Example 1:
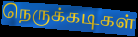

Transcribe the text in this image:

நெருக்கடிகள்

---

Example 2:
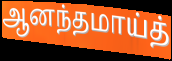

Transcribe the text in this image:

ஆனந்தமாய்த்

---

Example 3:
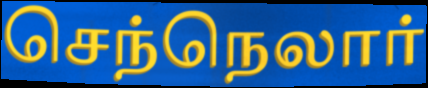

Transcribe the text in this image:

செந்நெலார்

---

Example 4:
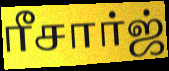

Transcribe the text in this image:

ரீசார்ஜ்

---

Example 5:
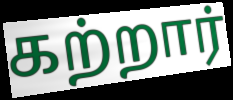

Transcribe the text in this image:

கற்றார்